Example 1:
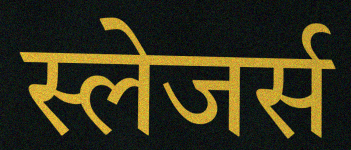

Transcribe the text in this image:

स्लेजर्स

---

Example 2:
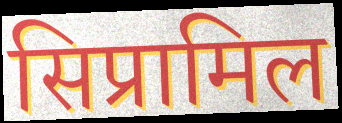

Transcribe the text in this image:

सिप्रामिल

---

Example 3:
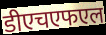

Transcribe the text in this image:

डीएचएफएल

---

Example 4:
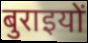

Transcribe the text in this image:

बुराइयों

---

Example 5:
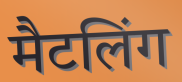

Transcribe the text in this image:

मैटलिंग